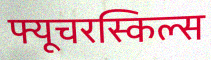
फ्यूचरस्किल्स